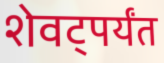
शेवट्पर्यंत